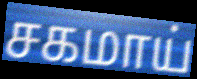
சகமாய்